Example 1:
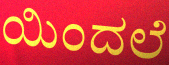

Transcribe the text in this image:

ಯಿಂದಲೆ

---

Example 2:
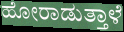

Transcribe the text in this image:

ಹೋರಾಡುತ್ತಾಳೆ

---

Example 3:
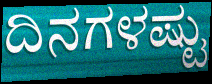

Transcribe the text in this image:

ದಿನಗಳಷ್ಟು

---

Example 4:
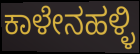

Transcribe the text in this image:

ಕಾಳೇನಹಳ್ಳಿ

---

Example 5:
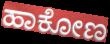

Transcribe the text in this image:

ಹಾಕೋಣ